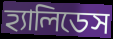
হ্যালিডেস